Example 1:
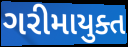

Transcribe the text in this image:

ગરીમાયુક્ત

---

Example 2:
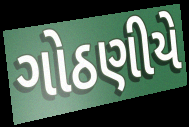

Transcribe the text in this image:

ગોઠણીયે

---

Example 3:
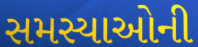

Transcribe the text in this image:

સમસ્યાઓની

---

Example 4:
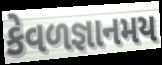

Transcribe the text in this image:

કેવળજ્ઞાનમય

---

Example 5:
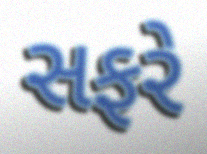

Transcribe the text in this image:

સફરે